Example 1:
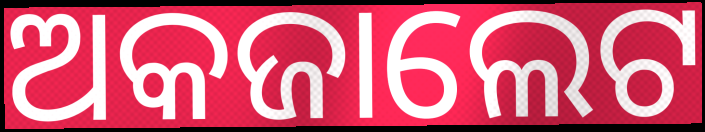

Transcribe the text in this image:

ଅକଜାଲେଟ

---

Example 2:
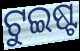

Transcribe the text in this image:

ଟୁଇଷ୍ଟ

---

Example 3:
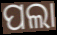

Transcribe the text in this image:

ପଲା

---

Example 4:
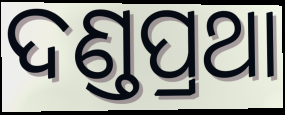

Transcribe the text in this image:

ଦଣ୍ଡପ୍ରଥା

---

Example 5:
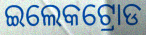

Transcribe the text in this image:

ଇଲେକଟ୍ରୋଡ